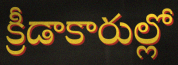
క్రీడాకారుల్లో